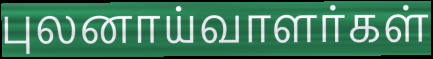
புலனாய்வாளர்கள்